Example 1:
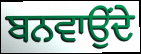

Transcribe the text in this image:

ਬਨਵਾਉਂਦੇ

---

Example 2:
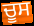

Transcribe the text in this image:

ਚੂਸ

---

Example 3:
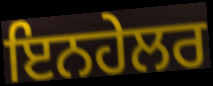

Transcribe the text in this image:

ਇਨਹੇਲਰ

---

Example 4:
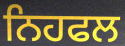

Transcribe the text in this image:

ਨਿਹਫਲ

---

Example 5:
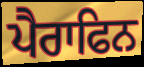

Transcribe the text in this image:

ਪੈਰਾਫਿਨ